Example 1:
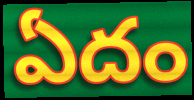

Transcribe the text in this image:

ఏదం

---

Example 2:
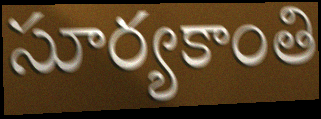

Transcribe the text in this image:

సూర్యకాంతి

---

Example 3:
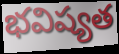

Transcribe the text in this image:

భవిష్యత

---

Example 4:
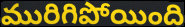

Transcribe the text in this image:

మురిగిపోయింది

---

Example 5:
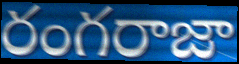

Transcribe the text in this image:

రంగరాజా